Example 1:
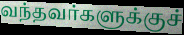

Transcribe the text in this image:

வந்தவர்களுக்குச்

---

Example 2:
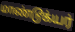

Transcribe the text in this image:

மாண்டூக்யர்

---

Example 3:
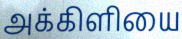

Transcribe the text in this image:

அக்கிளியை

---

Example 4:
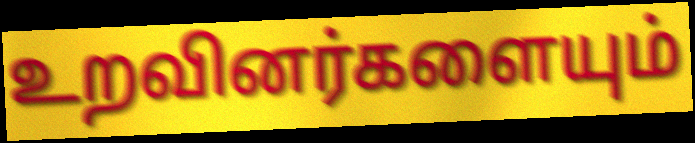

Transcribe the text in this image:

உறவினர்களையும்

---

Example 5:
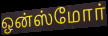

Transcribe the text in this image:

ஒன்ஸ்மோர்